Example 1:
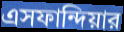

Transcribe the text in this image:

এসফান্দিয়ার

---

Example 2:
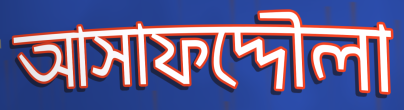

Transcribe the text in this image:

আসাফদ্দৌলা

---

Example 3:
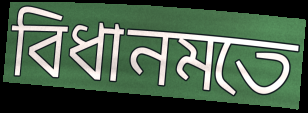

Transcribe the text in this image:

বিধানমতে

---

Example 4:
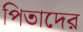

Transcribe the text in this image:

পিতাদের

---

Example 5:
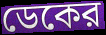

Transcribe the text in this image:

ডেকের